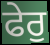
ਫੇਰੁ